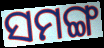
ସମଙ୍ଗ